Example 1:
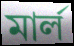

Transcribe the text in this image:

মার্ল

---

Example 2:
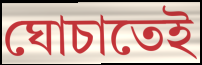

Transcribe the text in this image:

ঘোচাতেই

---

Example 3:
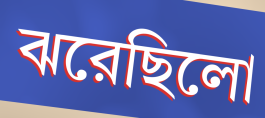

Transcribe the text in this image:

ঝরেছিলো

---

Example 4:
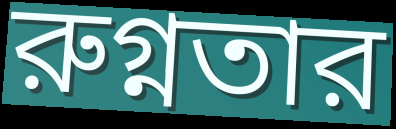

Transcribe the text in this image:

রুগ্নতার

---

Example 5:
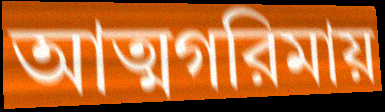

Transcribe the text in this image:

আত্মগরিমায়